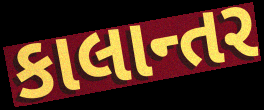
કાલાન્તર